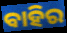
ବାହିର